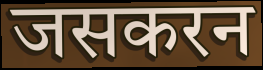
जसकरन